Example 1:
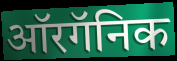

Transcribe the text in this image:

ऑरगॅनिक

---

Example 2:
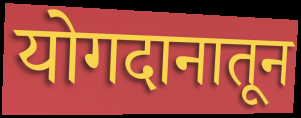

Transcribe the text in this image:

योगदानातून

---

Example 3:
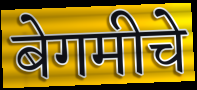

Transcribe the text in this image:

बेगमीचे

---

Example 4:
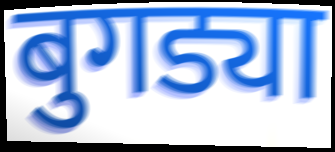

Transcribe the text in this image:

बुगड्या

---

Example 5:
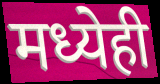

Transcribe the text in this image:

मध्येही